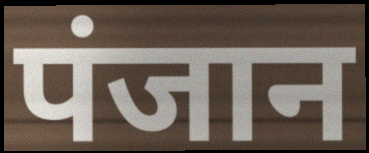
पंजान